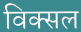
विक्सल